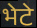
भेटे